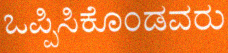
ಒಪ್ಪಿಸಿಕೊಂಡವರು